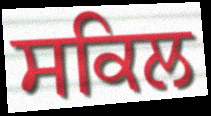
ਸਕਿਲ